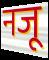
नजू